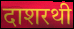
दाशरथी